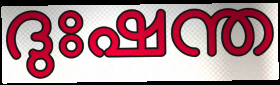
ദുഃഷന്ത